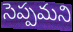
సెప్పమని